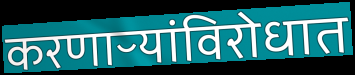
करणाऱ्यांविरोधात